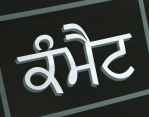
ਕੰਮੈਟ